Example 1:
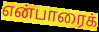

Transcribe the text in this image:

என்பாரைக்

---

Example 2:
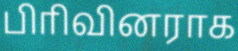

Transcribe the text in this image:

பிரிவினராக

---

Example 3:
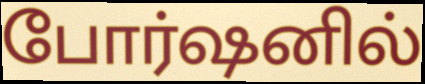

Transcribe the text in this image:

போர்ஷனில்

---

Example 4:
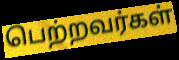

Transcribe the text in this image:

பெற்றவர்கள்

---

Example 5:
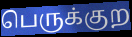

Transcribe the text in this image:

பெருக்குற